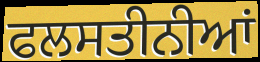
ਫਲਸਤੀਨੀਆਂ